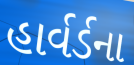
હાર્વર્ડના